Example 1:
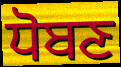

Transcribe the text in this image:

ਧੋਬਣ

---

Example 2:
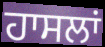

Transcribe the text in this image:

ਹਾਸਲਾਂ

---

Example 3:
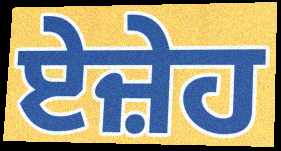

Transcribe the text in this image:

ਏਜ਼ੇਹ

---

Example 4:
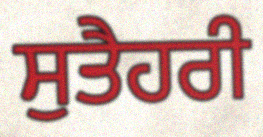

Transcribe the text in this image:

ਸੁਤੈਹਰੀ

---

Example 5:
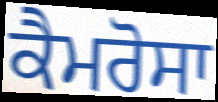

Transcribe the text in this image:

ਕੈਮਰੋਸਾ